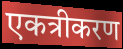
एकत्रीकरण